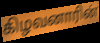
கிழவனாரின்